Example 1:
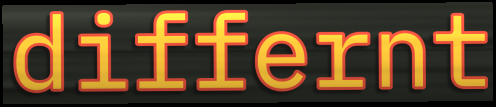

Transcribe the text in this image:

differnt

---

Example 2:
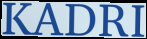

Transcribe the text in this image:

KADRI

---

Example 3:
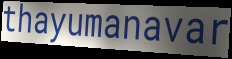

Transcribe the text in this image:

thayumanavar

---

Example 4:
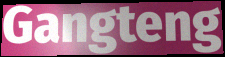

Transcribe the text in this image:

Gangteng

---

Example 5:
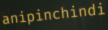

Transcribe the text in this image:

anipinchindi